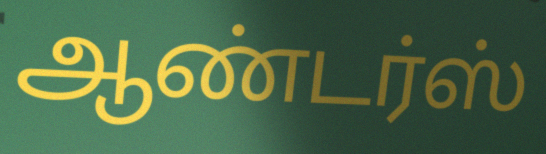
ஆண்டர்ஸ்